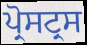
ਪ੍ਰੋਸਟ੍ਰਸ